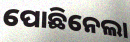
ପୋଛିନେଲା